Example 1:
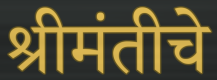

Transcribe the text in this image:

श्रीमंतीचे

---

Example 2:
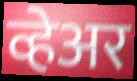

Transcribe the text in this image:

व्हेअर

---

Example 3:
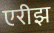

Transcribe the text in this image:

एरीझ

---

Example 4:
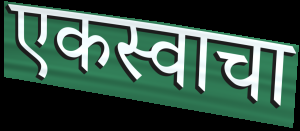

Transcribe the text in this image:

एकस्वाचा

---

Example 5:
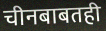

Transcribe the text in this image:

चीनबाबतही